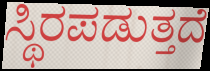
ಸ್ಥಿರಪಡುತ್ತದೆ